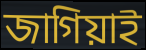
জাগিয়াই